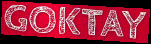
GOKTAY